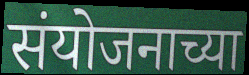
संयोजनाच्या